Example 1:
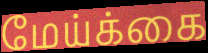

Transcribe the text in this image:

மேய்க்கை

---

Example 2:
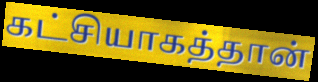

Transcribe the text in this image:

கட்சியாகத்தான்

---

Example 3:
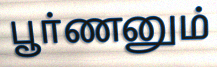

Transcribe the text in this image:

பூர்ணனும்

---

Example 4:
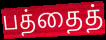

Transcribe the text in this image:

பத்தைத்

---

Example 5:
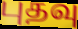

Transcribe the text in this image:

புதவு